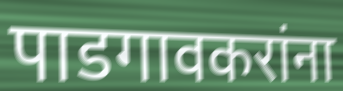
पाडगावकरांना